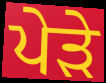
ਪੇੜੇ